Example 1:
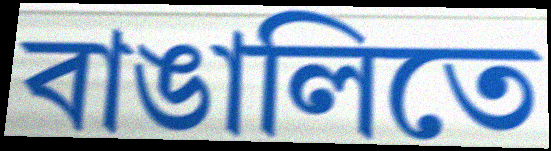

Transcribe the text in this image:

বাঙালিতে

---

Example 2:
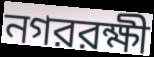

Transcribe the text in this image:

নগররক্ষী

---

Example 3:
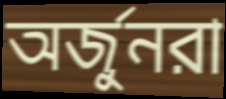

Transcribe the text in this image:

অর্জুনরা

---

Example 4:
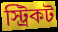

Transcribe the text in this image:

স্ট্রিকট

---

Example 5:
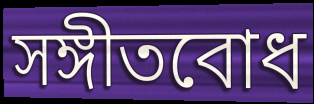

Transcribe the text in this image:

সঙ্গীতবোধ